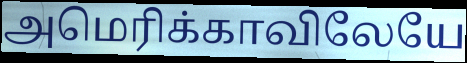
அமெரிக்காவிலேயே